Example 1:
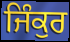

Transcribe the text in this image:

ਜਿੰਕੁਰ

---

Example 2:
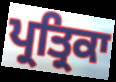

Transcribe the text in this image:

ਪ੍ਰਤ੍ਰਿਕਾ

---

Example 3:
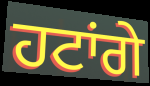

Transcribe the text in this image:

ਹਟਾਂਗੇ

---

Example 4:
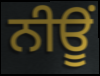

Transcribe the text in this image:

ਨੀਊਂ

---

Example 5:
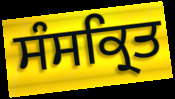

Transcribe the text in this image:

ਸੰਸਕ੍ਰਿਤ